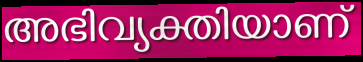
അഭിവ്യക്തിയാണ്